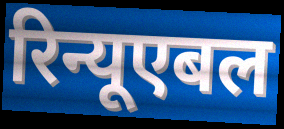
रिन्यूएबल